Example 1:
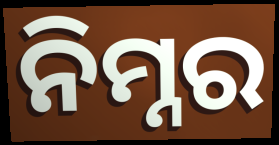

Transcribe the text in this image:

ନିମ୍ନର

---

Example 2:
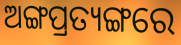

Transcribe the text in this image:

ଅଙ୍ଗପ୍ରତ୍ୟଙ୍ଗରେ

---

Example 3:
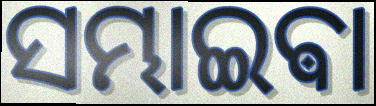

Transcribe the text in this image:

ସମ୍ଭାଇଵା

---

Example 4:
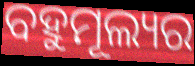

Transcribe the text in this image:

ବହୁମୂଲ୍ୟର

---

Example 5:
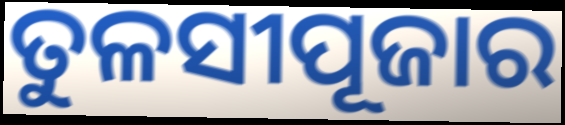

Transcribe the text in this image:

ତୁଳସୀପୂଜାର